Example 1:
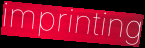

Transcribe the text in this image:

imprinting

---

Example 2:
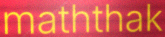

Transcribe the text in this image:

maththak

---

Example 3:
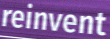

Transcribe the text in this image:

reinvent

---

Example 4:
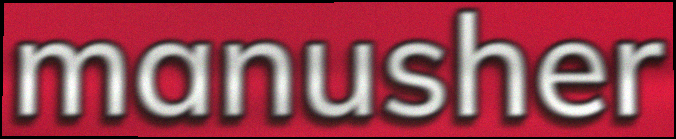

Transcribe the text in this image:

manusher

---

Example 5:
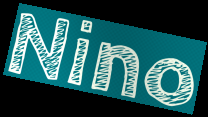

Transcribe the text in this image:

Nino